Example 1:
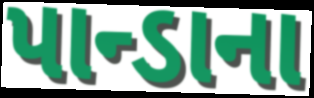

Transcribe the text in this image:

પાન્ડાના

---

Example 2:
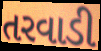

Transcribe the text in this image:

તરવાડી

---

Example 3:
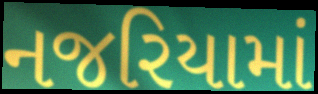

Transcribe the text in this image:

નજરિયામાં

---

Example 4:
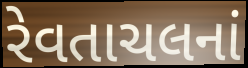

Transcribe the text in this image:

રેવતાચલનાં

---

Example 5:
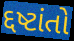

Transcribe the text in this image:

દ્દષ્ટાંતો